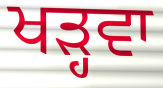
ਖੜ੍ਹਵਾ